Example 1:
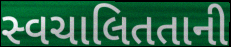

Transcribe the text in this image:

સ્વચાલિતતાની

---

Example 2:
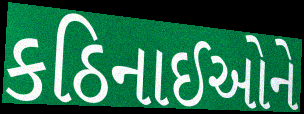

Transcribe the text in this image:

કઠિનાઈઓને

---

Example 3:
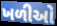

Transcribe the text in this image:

ખળીઓ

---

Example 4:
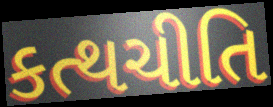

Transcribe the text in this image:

કત્થચીતિ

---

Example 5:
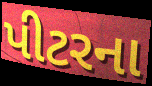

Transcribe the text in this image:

પીટરના